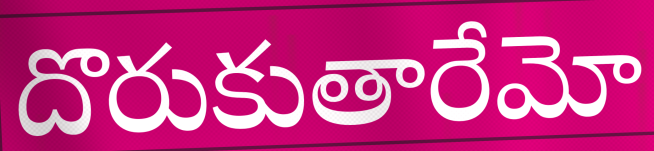
దొరుకుతారేమో